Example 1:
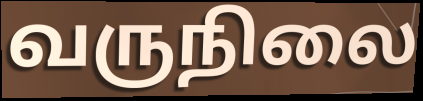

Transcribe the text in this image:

வருநிலை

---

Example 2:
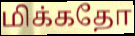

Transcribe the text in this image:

மிக்கதோ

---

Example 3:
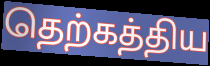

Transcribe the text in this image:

தெற்கத்திய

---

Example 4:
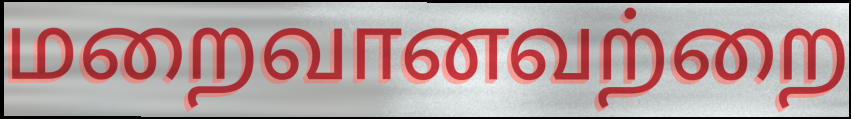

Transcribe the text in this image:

மறைவானவற்றை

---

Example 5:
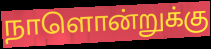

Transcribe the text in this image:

நாளொன்றுக்கு